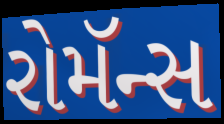
રોમૅન્સ